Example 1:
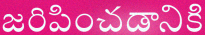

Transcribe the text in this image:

జరిపించడానికి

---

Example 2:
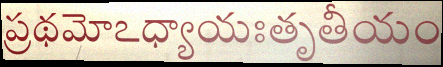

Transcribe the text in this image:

ప్రథమోఽధ్యాయఃతృతీయం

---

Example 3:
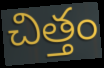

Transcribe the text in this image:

చిత్తం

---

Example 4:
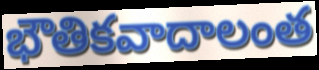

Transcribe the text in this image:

భౌతికవాదాలంత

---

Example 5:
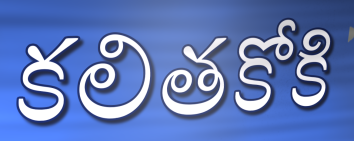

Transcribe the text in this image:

కలితకోకి